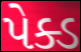
પેક્ડ